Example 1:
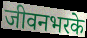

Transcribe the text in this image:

जीवनभरके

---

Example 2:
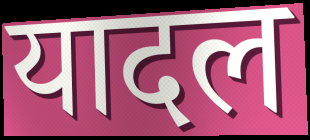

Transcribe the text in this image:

यादल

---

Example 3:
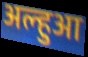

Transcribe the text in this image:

अल्हुआ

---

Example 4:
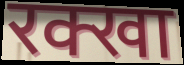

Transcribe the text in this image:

रक्खा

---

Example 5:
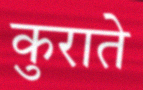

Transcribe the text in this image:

कुराते